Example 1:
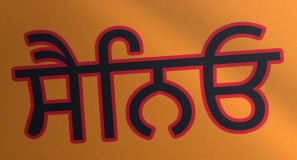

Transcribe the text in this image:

ਸੈਨਿਓ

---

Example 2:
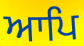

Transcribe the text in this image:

ਆਪਿ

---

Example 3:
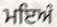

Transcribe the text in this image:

ਮਇਅੰ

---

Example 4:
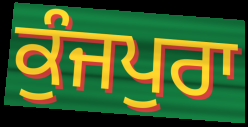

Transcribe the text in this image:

ਕੁੰਜਪੁਰਾ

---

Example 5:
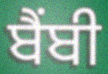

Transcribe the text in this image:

ਬੈਂਬੀ